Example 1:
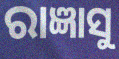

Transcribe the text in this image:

ରାଜ୍ଞାସୁ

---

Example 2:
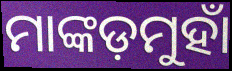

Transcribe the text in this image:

ମାଙ୍କଡ଼ମୁହାଁ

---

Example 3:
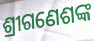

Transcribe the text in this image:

ଶ୍ରୀଗଣେଶଙ୍କ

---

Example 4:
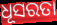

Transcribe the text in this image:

ଧୂସରତା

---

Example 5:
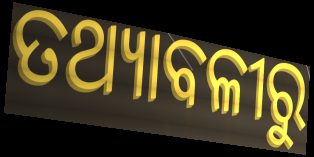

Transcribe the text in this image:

ତଥ୍ୟାବଳୀରୁ